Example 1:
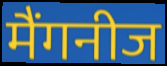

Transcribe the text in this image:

मैंगनीज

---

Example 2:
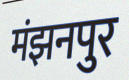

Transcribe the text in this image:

मंझनपुर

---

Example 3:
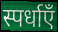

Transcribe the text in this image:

स्पर्धाएँ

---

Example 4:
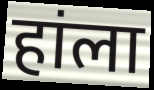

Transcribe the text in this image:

हांला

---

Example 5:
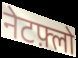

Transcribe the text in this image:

नेटफ़्लो